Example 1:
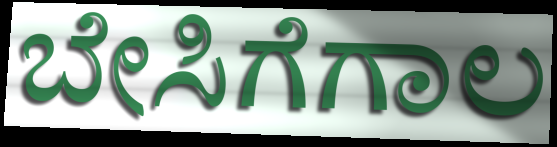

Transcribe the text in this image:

ಬೇಸಿಗೆಗಾಲ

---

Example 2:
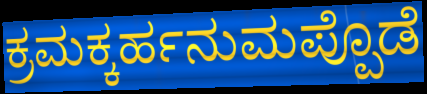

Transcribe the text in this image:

ಕ್ರಮಕ್ಕರ್ಹನುಮಪ್ಪೊಡೆ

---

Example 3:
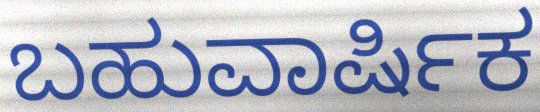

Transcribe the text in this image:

ಬಹುವಾರ್ಷಿಕ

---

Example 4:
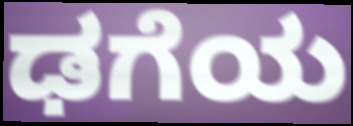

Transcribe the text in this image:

ಢಗೆಯ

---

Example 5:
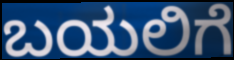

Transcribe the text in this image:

ಬಯಲಿಗೆ